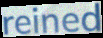
reined